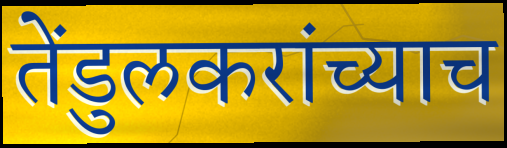
तेंडुलकरांच्याच